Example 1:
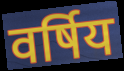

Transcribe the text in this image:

वर्षिय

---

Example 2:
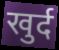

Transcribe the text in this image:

खुर्द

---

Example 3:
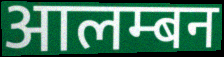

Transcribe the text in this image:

आलम्बन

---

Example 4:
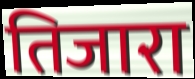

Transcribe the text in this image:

तिजारा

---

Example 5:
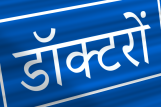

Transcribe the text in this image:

डॉक्टरों